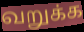
வறுக்க